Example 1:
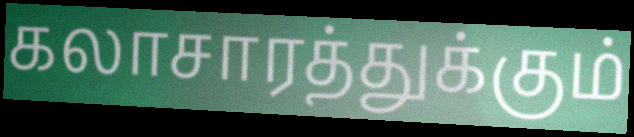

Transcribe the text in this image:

கலாசாரத்துக்கும்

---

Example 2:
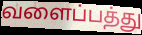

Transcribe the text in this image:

வளைப்பத்து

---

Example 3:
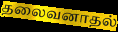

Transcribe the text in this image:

தலைவனாதல்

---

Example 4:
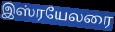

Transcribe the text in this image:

இஸ்ரயேலரை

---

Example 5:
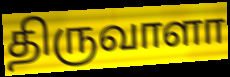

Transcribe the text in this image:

திருவாளா